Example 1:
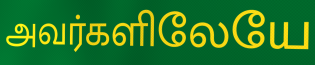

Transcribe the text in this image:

அவர்களிலேயே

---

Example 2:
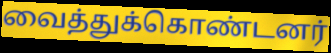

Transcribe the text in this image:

வைத்துக்கொண்டனர்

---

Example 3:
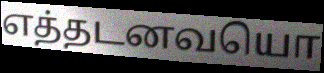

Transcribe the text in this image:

எத்தடனவயொ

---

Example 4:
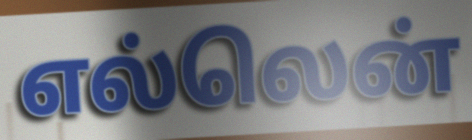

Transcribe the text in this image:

எல்லென்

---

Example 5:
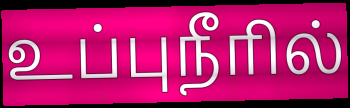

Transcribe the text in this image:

உப்புநீரில்